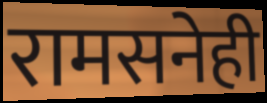
रामसनेही